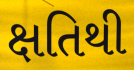
ક્ષતિથી